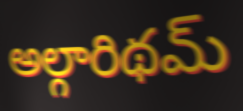
అల్గారిథమ్